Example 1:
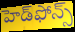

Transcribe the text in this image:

హెడ్‌ఫోన్స్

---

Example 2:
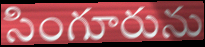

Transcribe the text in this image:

సింగూరును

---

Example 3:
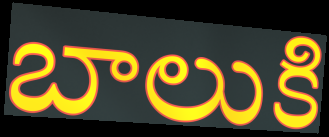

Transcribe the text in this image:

బాలుకి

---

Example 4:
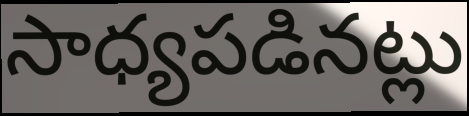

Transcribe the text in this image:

సాధ్యపడినట్లు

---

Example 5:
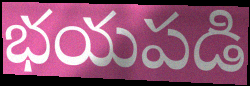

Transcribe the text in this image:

భయపడి